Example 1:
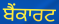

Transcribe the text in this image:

ਬੈਂਕਾਰਟ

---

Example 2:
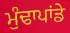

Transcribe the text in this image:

ਮੁੰਢਾਪਾਂਡੇ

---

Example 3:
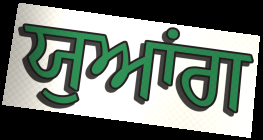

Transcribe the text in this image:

ਯੁਆਂਗ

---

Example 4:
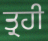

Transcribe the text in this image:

ਤ੍ਰਹੀ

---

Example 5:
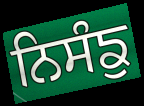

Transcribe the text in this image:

ਨਿਸੰਙੁ